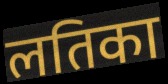
लतिका